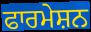
ਫਾਰਮੇਸ਼ਨ